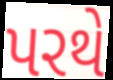
પરથે